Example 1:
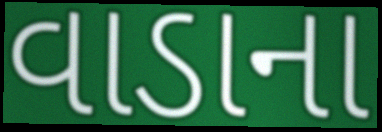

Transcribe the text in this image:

વાડાના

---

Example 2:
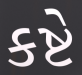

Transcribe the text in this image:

કષ્ટે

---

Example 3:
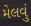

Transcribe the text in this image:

મેલવું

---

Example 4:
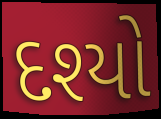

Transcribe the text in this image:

દશ્યો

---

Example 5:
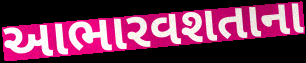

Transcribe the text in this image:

આભારવશતાના